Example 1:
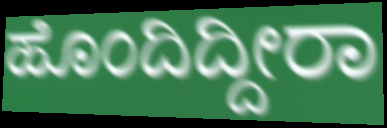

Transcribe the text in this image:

ಹೊಂದಿದ್ದೀರಾ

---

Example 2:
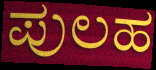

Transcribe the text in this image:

ಪುಲಹ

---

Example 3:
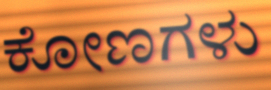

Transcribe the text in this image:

ಕೋಣಗಳು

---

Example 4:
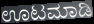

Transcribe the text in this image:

ಊಟಮಾಡಿ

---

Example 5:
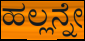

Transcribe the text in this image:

ಹಲ್ಲನ್ನೇ